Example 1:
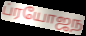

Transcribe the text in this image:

ப்ரயோஜந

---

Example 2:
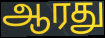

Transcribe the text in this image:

ஆரது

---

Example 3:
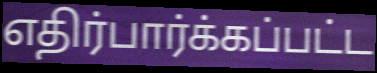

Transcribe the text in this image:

எதிர்பார்க்கப்பட்ட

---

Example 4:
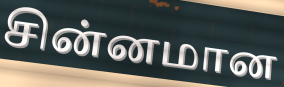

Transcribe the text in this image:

சின்னமான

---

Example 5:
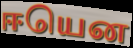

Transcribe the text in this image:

ஈயென